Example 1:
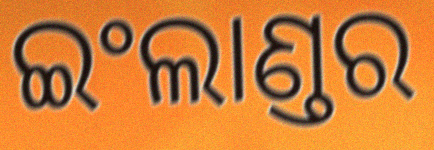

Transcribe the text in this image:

ଇଂଲାଣ୍ଡର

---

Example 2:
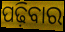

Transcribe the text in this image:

ପଢ଼ିବାର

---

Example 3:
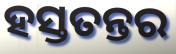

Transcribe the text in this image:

ହସ୍ତତନ୍ତର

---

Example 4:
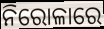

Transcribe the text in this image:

ନିରୋଳାରେ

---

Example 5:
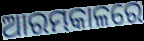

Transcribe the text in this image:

ଆରମ୍ଭକାଳରେ